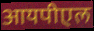
आयपीएल